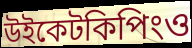
উইকেটকিপিংও